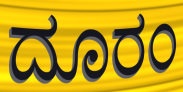
ದೂರಂ